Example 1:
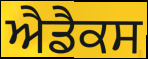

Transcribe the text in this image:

ਐਡੈਕਸ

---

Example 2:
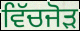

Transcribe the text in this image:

ਵਿੱਚਜੋੜ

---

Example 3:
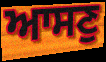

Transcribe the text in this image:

ਆਸਣੁ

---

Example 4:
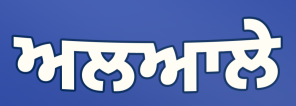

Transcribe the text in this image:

ਅਲਆਲੇ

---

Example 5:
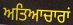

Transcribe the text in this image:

ਅਤਿਆਚਾਰਾਂ